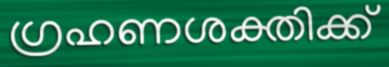
ഗ്രഹണശക്തിക്ക്